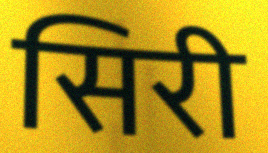
सिरी